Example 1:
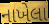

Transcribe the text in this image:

નાખેલા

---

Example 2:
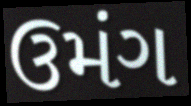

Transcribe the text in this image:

ઉમંગ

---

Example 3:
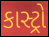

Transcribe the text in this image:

કાસ્ટ્રો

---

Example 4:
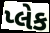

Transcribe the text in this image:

પ્લેક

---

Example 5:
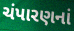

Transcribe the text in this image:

ચંપારણનાં